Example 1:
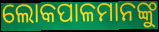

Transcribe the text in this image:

ଲୋକପାଳମାନଙ୍କୁ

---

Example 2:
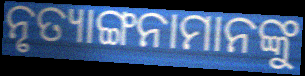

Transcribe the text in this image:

ନୃତ୍ୟାଙ୍ଗନାମାନଙ୍କୁ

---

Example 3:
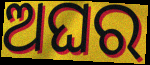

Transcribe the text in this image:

ଅଘର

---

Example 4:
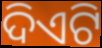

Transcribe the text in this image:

ଦିଏଟି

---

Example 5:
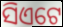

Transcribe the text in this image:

ସିଏଟେ